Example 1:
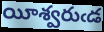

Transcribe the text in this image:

యీశ్వరుఁడ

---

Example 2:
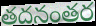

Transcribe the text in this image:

తదనంతర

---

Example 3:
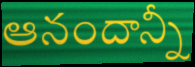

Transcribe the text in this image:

ఆనందాన్నీ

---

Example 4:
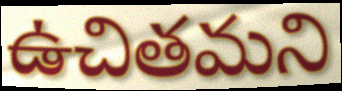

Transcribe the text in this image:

ఉచితమని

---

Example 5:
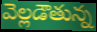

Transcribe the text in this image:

వెల్లడౌతున్న